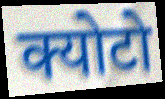
क्‍योटो